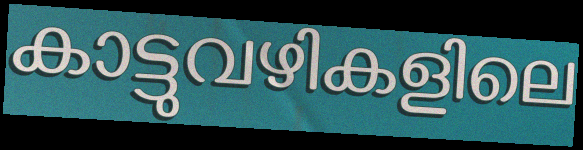
കാട്ടുവഴികളിലെ